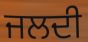
ਜਲਦੀ